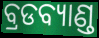
ବ୍ରଡବ୍ୟାଣ୍ଡ